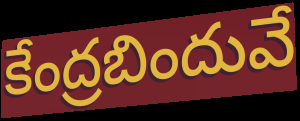
కేంద్రబిందువే